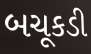
બચૂકડી